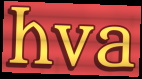
hva